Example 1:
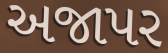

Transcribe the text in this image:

અજાપર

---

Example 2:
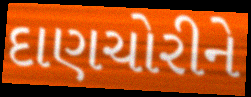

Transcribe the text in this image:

દાણચોરીને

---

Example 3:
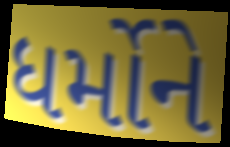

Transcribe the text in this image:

ધર્મોને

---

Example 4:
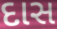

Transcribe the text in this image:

દાસ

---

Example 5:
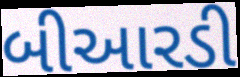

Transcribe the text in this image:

બીઆરડી